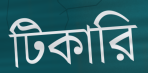
টিকারি